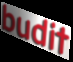
budit